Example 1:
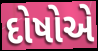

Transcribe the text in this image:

દોષોએ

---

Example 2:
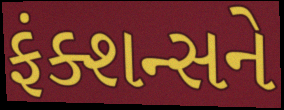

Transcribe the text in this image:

ફંક્શન્સને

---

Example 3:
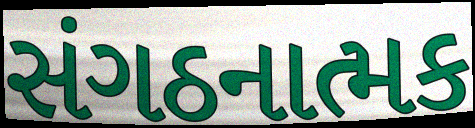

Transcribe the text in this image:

સંગઠનાત્મક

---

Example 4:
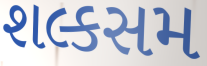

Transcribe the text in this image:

શલ્કસમ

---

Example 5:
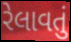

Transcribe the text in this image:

રેલાવતું